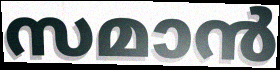
സമാൻ